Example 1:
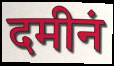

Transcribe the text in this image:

दमीनं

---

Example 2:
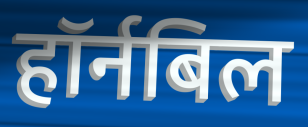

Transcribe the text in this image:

हॉर्नबिल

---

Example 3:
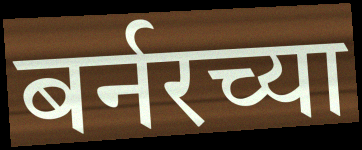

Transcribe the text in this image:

बर्नरच्या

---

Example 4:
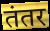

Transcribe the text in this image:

तंतर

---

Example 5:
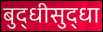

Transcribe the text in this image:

बुद्धीसुद्धा